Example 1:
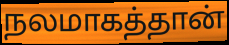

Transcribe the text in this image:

நலமாகத்தான்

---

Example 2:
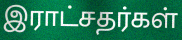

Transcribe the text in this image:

இராட்சதர்கள்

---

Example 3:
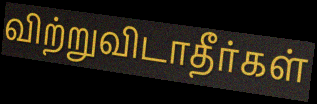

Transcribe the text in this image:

விற்றுவிடாதீர்கள்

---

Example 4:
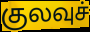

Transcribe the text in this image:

குலவுச்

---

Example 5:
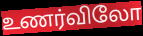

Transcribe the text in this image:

உணர்விலோ